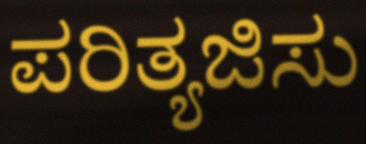
ಪರಿತ್ಯಜಿಸು